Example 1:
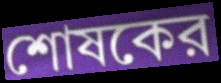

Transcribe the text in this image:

শোষকের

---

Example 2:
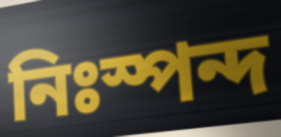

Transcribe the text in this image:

নিঃস্পন্দ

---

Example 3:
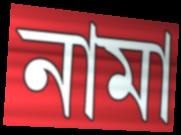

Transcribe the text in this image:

নামা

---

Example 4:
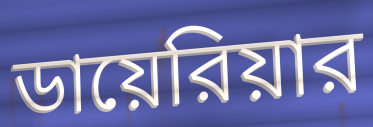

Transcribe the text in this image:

ডায়েরিয়ার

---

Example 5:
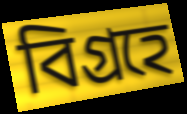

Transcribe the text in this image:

বিগ্রহে